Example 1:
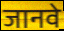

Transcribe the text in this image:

जानवे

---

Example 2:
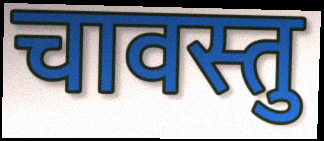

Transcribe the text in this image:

चावस्तु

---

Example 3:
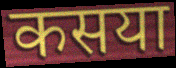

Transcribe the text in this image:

कसया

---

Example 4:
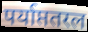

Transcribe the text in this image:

पर्याप्ततरल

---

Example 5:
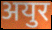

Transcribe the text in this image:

अयुर